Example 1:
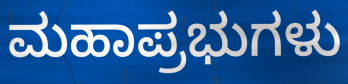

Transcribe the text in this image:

ಮಹಾಪ್ರಭುಗಳು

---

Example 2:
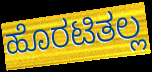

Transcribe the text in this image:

ಹೊರಟಿತಲ್ಲ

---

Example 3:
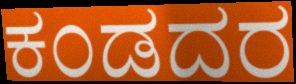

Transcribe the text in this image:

ಕಂಡದರ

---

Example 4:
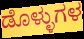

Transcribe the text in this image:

ಡೊಳ್ಳುಗಳ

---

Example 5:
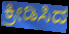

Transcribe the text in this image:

ಕ್ರೀಡಿಸಿದ